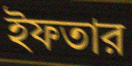
ইফতার